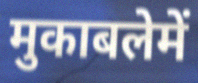
मुकाबलेमें